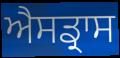
ਐਸਡ੍ਰਾਸ